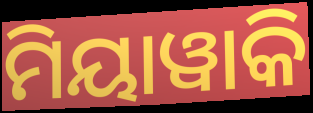
ମିୟାୱାକି